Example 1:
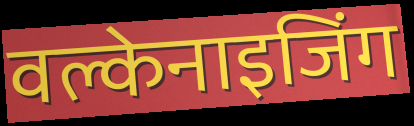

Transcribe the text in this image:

वल्केनाइजिंग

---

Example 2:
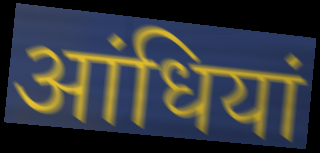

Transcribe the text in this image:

आंधियां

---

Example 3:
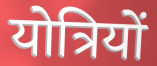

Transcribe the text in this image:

योत्रियों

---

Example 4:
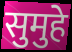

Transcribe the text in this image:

सुमुहे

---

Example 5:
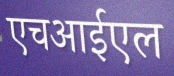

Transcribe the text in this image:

एचआईएल